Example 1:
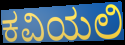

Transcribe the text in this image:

ಕವಿಯಲಿ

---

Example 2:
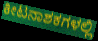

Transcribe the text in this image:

ಕೀಟನಾಶಕಗಳಲ್ಲಿ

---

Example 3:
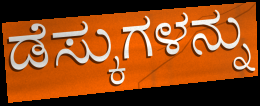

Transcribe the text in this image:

ಡೆಸ್ಕುಗಳನ್ನು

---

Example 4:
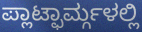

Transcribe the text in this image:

ಪ್ಲಾಟ್ಫಾರ್ಮ್ಗಳಲ್ಲಿ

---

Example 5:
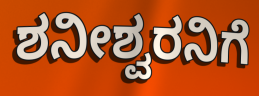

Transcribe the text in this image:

ಶನೀಶ್ವರನಿಗೆ